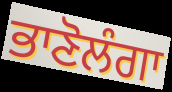
ਭਾਣੋਲੰਗਾ